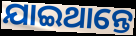
ଯାଇଥାନ୍ତେ